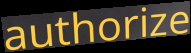
authorize